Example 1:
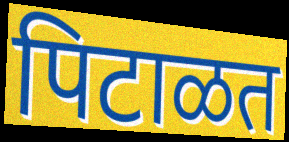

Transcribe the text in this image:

पिटाळत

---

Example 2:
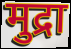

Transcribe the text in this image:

मुद्रा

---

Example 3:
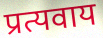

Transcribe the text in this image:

प्रत्यवाय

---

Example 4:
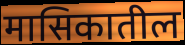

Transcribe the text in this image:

मासिकातील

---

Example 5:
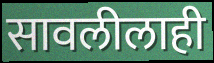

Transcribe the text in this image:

सावलीलाही